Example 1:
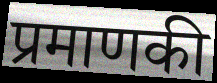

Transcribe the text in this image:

प्रमाणकी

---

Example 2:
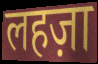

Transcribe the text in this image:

लहज़ा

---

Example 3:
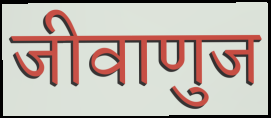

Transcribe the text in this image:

जीवाणुज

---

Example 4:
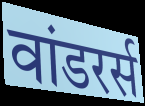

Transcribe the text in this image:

वांडरर्स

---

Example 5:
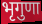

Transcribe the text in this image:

भृगुणा